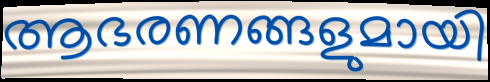
ആഭരണങ്ങളുമായി